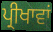
ਪ੍ਰੀਖਾਵਾਂ